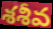
శశీవ